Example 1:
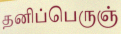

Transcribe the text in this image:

தனிப்பெருஞ்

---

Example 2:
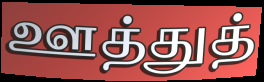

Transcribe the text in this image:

ஊத்துத்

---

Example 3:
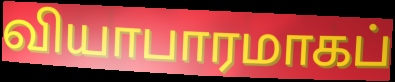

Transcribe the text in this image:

வியாபாரமாகப்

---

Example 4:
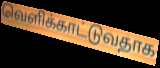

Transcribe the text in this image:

வெளிக்காட்டுவதாக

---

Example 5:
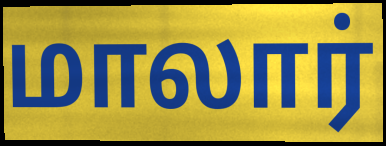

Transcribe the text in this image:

மாலார்